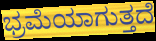
ಭ್ರಮೆಯಾಗುತ್ತದೆ